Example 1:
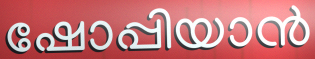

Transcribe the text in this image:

ഷോപ്പിയാൻ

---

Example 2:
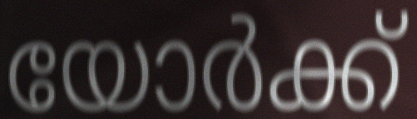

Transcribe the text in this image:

യോർക്ക്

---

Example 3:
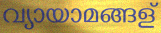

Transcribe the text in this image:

വ്യായാമങ്ങള്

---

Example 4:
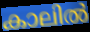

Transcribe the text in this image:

കാലിൽ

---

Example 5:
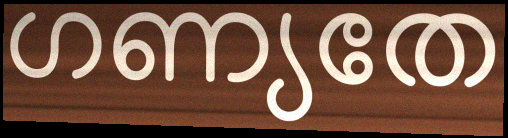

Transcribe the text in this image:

ഗണ്യതേ